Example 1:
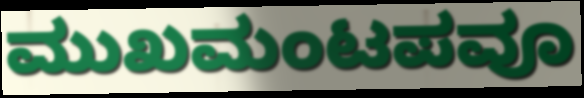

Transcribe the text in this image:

ಮುಖಮಂಟಪವೂ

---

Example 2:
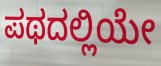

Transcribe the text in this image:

ಪಥದಲ್ಲಿಯೇ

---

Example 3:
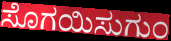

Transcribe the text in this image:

ಸೊಗಯಿಸುಗುಂ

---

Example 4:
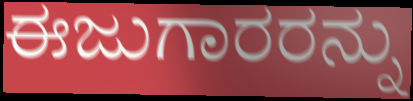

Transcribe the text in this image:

ಈಜುಗಾರರನ್ನು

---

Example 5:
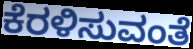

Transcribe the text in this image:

ಕೆರಳಿಸುವಂತೆ